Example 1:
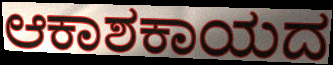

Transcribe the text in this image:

ಆಕಾಶಕಾಯದ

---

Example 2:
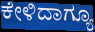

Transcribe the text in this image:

ಕೇಳಿದಾಗ್ಯೂ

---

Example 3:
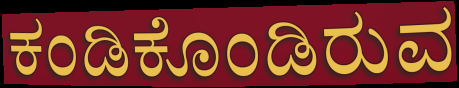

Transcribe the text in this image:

ಕಂಡಿಕೊಂಡಿರುವ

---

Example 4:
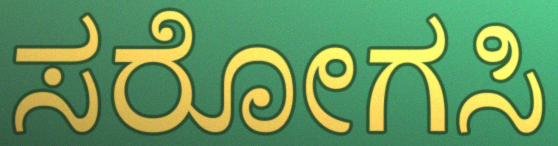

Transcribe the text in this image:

ಸರೋಗಸಿ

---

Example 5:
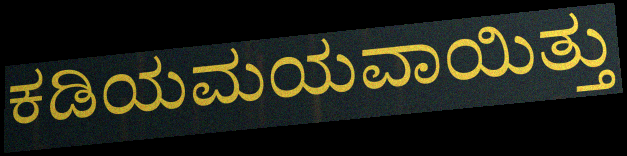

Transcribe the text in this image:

ಕಡಿಯಮಯವಾಯಿತ್ತು